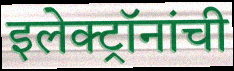
इलेक्ट्रॉनांची